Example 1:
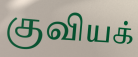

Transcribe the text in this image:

குவியக்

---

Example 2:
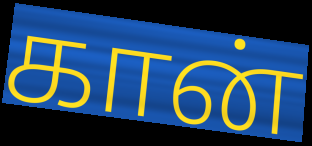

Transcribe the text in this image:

கான்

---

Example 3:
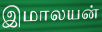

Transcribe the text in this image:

இமாலயன்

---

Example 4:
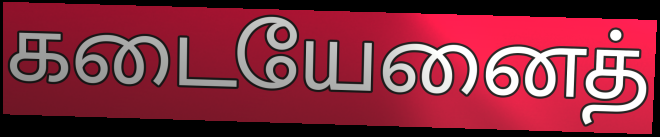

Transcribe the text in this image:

கடையேனைத்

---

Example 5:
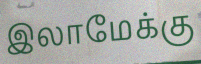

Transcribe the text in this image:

இலாமேக்கு